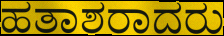
ಹತಾಶರಾದರು